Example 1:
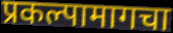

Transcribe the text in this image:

प्रकल्पामागचा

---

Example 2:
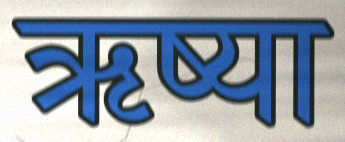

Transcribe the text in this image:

ऋष्या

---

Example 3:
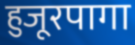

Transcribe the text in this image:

हुजूरपागा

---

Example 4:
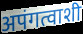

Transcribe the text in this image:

अपंगत्वाशी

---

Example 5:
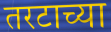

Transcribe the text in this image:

तरटाच्या